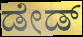
ಡೇಡ್